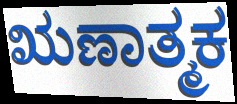
ಋಣಾತ್ಮಕ